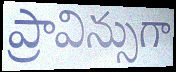
ప్రావిన్సుగా